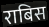
राबिस